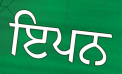
ਇਪਨ